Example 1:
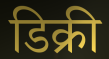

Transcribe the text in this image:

डिक्री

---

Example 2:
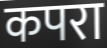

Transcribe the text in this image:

कपरा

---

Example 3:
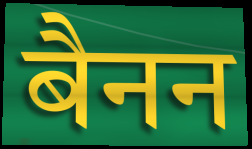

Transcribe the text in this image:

बैनन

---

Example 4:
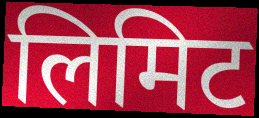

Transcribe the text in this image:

लिमिट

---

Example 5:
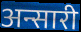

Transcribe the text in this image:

अन्सारी